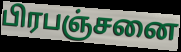
பிரபஞ்சனை